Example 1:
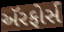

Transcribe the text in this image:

ઍરફોર્સ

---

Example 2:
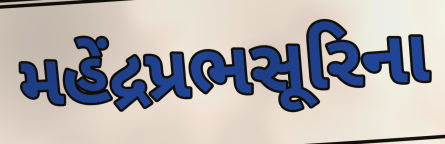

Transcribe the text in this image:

મહેંદ્રપ્રભસૂરિના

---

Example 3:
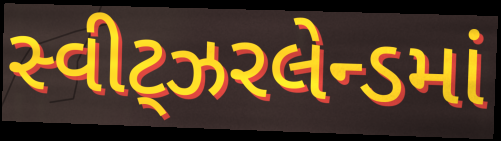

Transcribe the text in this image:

સ્વીટ્ઝરલેન્ડમાં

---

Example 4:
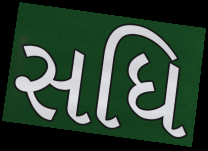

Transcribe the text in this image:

સધિ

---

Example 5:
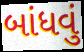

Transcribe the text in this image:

બાંધવું